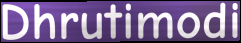
Dhrutimodi